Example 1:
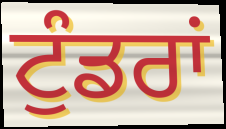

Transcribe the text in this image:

ਟੁੰਡਰਾਂ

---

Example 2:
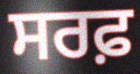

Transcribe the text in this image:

ਸਰਫ਼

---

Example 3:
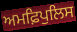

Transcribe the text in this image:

ਅਮਫ਼ਿਪੁਲਿਸ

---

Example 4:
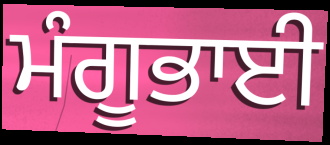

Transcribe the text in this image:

ਮੰਗੂਭਾਈ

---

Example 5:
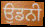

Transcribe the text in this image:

ਉਡਨੀ